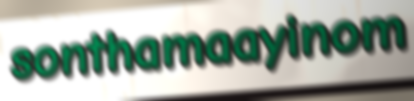
sonthamaayinom